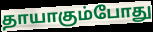
தாயாகும்போது